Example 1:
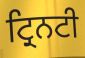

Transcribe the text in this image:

ਟ੍ਰਿਨਟੀ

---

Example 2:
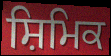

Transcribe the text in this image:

ਸ਼ਿਮਿਕ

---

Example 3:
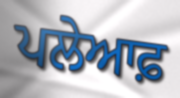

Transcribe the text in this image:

ਪਲੇਆਫ਼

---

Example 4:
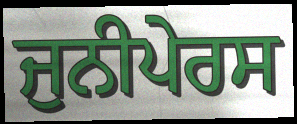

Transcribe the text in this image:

ਜੁਨੀਪੇਰਸ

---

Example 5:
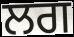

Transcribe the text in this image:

ਲਗ